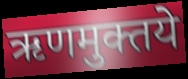
ऋणमुक्तये